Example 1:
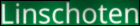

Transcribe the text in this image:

Linschoten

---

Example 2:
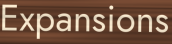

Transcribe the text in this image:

Expansions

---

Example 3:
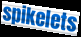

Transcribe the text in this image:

spikelets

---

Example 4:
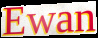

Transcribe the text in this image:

Ewan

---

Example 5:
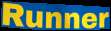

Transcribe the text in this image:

Runner